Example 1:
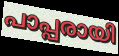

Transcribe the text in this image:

പാപ്പരായി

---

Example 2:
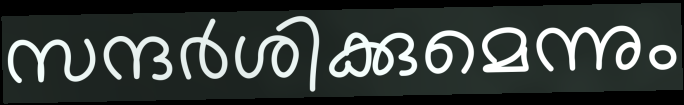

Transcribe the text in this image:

സന്ദർശിക്കുമെന്നും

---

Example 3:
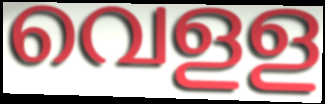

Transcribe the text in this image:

വെളള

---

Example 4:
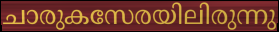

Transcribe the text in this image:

ചാരുകസേരയിലിരുന്നു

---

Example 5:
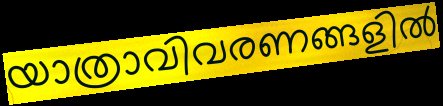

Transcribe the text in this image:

യാത്രാവിവരണങ്ങളിൽ